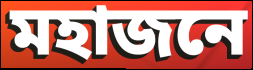
মহাজনে